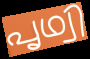
പൃഥ്വി